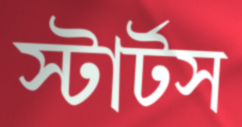
স্টার্টস